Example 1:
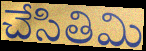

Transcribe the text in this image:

చేసితిమి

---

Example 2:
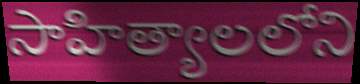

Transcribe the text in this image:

సాహిత్యాలలోని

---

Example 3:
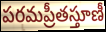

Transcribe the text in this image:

పరమప్రీతస్తూణీ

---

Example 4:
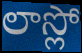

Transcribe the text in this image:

లాస్లో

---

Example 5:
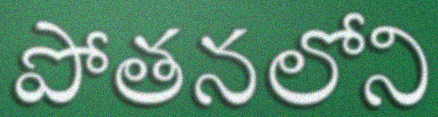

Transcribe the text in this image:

పోతనలోని